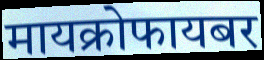
मायक्रोफायबर